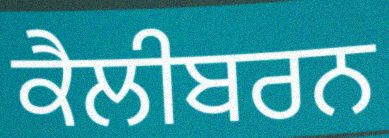
ਕੈਲੀਬਰਨ